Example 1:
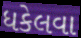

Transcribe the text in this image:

ધકેલવા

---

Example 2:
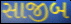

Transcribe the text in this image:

સાજીબ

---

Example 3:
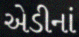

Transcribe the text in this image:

એડીનાં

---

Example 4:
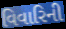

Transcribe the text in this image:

વિવારિની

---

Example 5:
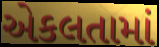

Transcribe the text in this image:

એકલતામાં